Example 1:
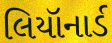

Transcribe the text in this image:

લિયૉનાર્ડ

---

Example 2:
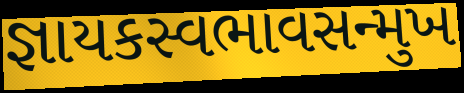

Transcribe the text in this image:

જ્ઞાયકસ્વભાવસન્મુખ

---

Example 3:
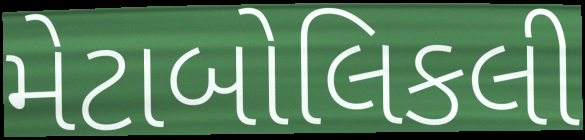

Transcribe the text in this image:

મેટાબોલિકલી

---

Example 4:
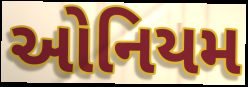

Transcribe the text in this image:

ઓનિયમ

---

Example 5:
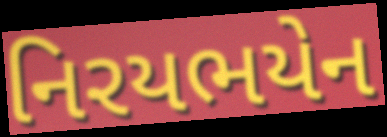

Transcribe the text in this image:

નિરયભયેન